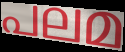
പലമ